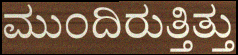
ಮುಂದಿರುತ್ತಿತ್ತು